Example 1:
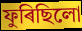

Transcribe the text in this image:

ফুৰিছিলো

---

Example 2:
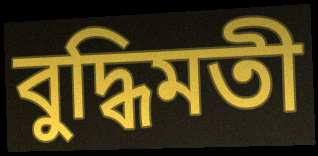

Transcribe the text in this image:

বুদ্ধিমতী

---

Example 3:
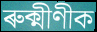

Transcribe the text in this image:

ৰুক্মীণীক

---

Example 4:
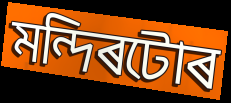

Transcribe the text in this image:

মন্দিৰটোৰ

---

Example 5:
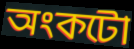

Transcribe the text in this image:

অংকটো